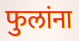
फुलांना